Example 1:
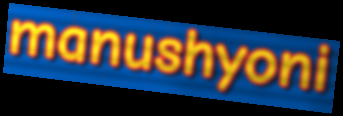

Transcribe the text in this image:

manushyoni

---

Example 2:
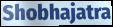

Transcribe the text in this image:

Shobhajatra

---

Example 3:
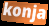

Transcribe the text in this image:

konja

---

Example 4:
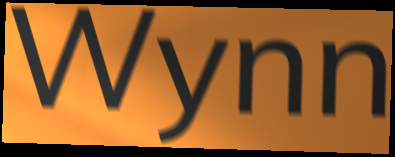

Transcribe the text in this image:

Wynn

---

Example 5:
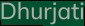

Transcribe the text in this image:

Dhurjati